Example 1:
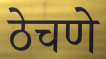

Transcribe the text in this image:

ठेचणे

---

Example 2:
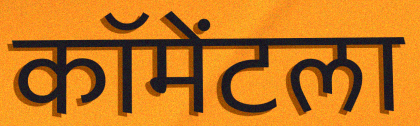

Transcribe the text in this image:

कॉमेंटला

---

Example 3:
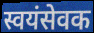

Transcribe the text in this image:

स्वयंसेवक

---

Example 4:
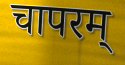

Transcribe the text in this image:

चापरम्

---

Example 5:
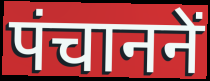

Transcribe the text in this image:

पंचाननें